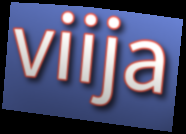
viija